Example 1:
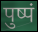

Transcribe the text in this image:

पुष्पं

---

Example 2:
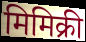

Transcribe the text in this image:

मिमिक्री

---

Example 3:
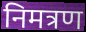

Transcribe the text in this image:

निमत्रण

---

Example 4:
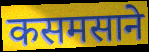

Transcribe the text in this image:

कसमसाने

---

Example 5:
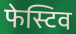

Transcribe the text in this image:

फेस्टिव